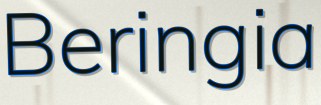
Beringia